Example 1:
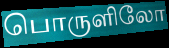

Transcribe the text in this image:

பொருளிலோ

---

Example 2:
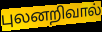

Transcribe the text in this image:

புலனறிவால்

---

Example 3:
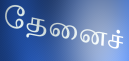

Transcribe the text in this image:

தேனைச்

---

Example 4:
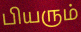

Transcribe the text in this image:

பியரும்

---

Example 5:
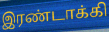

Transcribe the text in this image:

இரண்டாக்கி